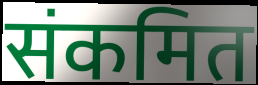
संकमित